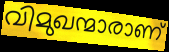
വിമുഖന്മാരാണ്